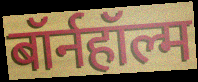
बॉर्नहॉल्म